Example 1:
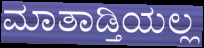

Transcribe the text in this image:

ಮಾತಾಡ್ತಿಯಲ್ಲ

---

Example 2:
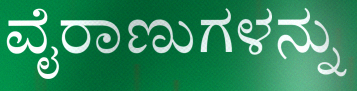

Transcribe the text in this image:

ವೈರಾಣುಗಳನ್ನು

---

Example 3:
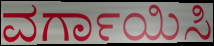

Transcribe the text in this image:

ವರ್ಗಾಯಿಸಿ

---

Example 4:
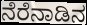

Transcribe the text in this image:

ನೆರೆನಾಡಿನ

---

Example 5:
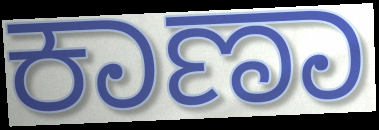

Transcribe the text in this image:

ಕಾಣಾ